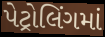
પેટ્રોલિંગમાં